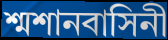
শ্মশানবাসিনী